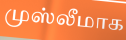
முஸ்லீமாக